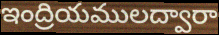
ఇంద్రియములద్వారా